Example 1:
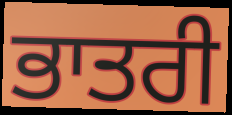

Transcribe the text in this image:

ਭਾਤਰੀ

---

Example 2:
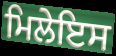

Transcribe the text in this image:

ਮਿਲੇਇਸ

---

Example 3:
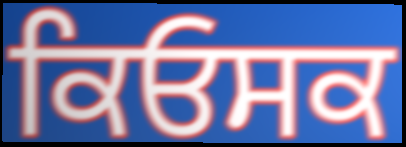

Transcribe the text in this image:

ਕਿਓਸਕ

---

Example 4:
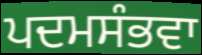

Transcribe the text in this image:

ਪਦਮਸੰਭਵਾ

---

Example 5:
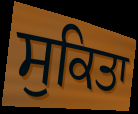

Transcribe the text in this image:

ਸੁਕਿਤਾ